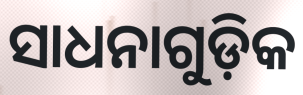
ସାଧନାଗୁଡ଼ିକ